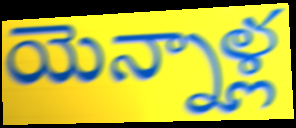
యెన్నాళ్ల